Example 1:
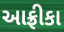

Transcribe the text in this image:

આફ્રીકા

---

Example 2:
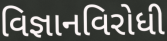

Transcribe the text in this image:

વિજ્ઞાનવિરોધી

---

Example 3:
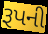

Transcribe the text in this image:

રૂપની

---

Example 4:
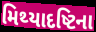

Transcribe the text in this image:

મિથ્યાદષ્ટિના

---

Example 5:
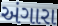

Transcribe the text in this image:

અંગારા